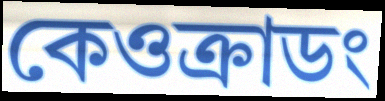
কেওক্রাডং